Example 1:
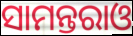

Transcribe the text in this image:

ସାମନ୍ତରାଓ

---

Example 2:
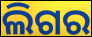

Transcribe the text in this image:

ଲିଗର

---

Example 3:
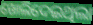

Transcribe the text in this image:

ଖୋଲିଦେଇଥିଲା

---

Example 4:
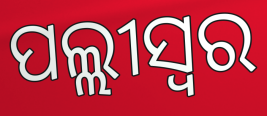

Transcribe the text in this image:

ପଲ୍ଲୀସ୍ଵର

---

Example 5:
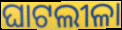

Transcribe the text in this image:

ଘାଟଲୀଳା